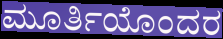
ಮೂರ್ತಿಯೊಂದರ